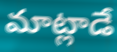
మాట్లాడే